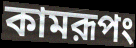
কামরূপং